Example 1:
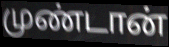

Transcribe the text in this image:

முண்டான்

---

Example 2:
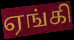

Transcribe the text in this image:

ஏங்கி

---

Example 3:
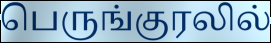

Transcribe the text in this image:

பெருங்குரலில்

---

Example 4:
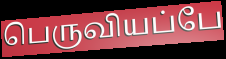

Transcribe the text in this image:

பெருவியப்பே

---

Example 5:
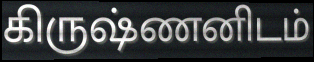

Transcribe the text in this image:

கிருஷ்ணனிடம்